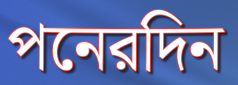
পনেরদিন